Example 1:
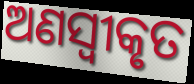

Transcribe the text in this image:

ଅଣସ୍ୱୀକୃତ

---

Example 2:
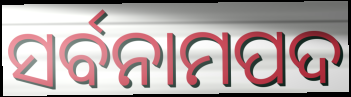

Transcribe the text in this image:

ସର୍ବନାମପଦ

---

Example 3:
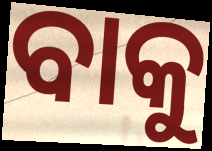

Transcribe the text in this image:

ବାକୁ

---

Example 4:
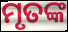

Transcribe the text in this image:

ମୃତଙ୍କ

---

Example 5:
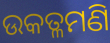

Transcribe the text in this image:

ଉକତ୍ଳମଣି